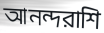
আনন্দরাশি